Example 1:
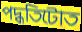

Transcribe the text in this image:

পদ্ধতিটোত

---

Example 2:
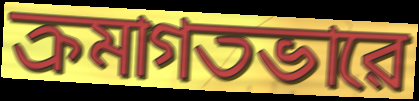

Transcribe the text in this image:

ক্ৰমাগতভাৱে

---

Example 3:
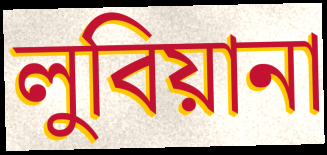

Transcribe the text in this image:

লুবিয়ানা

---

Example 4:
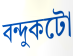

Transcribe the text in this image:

বন্দুকটো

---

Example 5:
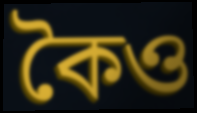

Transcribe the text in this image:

কৈও